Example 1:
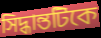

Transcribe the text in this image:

সিদ্ধান্তটিকে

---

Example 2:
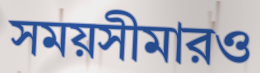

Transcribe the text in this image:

সময়সীমারও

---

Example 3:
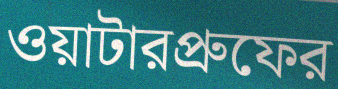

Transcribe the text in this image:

ওয়াটারপ্রুফের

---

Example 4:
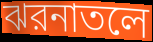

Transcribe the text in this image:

ঝরনাতলে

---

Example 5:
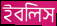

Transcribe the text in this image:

ইবলিস